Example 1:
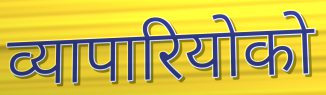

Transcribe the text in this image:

व्यापारियोको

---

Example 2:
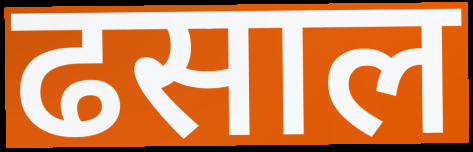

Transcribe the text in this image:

ढसाल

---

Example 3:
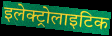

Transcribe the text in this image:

इलेक्ट्रोलाइटिक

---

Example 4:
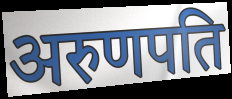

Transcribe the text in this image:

अरुणपति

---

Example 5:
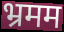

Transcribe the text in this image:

भ्रमम